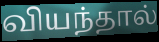
வியந்தால்